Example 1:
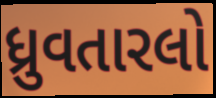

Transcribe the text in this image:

ધ્રુવતારલો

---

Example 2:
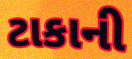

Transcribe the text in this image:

ટાકાની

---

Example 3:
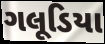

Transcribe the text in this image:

ગલૂડિયા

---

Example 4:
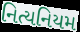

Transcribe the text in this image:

નિત્યનિયમ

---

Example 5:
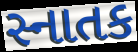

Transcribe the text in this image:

સ્નાતક